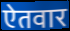
ऐतवार